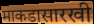
माकडासारखी